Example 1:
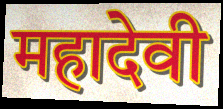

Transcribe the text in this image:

महादेवी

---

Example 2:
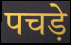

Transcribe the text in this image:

पचड़े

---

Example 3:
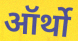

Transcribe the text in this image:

ऑर्थो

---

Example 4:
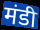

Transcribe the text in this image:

मंडी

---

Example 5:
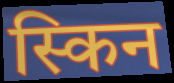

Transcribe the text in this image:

स्‍किन